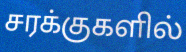
சரக்குகளில்